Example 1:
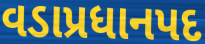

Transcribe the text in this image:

વડાપ્રધાનપદ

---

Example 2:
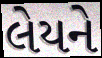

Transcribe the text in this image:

લેયને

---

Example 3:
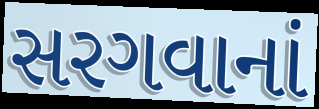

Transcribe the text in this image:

સરગવાનાં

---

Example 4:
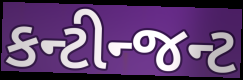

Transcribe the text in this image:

કન્ટીન્જન્ટ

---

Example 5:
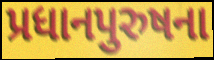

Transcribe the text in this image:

પ્રધાનપુરુષના